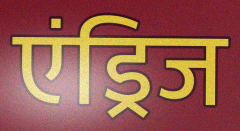
एंड्रिज